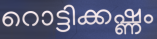
റൊട്ടിക്കഷ്ണം